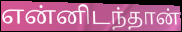
என்னிடந்தான்